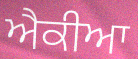
ਐਕੀਆ